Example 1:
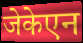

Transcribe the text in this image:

जेकेएन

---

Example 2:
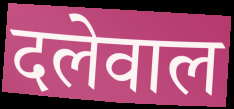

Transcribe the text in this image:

दलेवाल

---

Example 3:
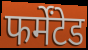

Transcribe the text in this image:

फर्मेंटेड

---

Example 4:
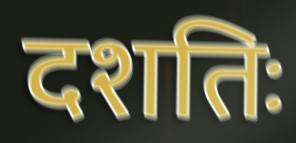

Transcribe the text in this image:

दशतिः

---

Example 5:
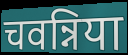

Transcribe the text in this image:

चवन्निया